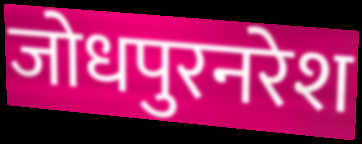
जोधपुरनरेश